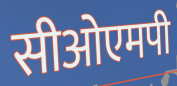
सीओएमपी